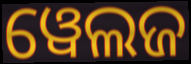
ୱେଲଜ